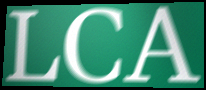
LCA